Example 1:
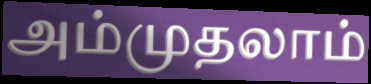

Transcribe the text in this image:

அம்முதலாம்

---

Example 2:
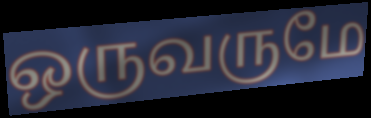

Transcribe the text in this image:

ஒருவருமே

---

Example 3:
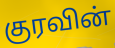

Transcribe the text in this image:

குரவின்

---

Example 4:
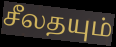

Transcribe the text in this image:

சீலதயும்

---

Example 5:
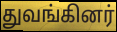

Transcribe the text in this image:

துவங்கினர்